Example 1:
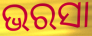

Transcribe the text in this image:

ଭରସା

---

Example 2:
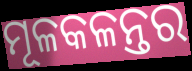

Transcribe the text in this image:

ମୂଳକଳନ୍ତର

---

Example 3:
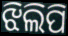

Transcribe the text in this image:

ଝିଲିପି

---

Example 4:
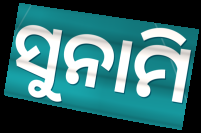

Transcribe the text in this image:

ସୁନାମି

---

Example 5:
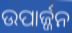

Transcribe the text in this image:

ଉପାର୍ଜ୍ଜନ